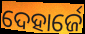
ଦେହାର୍ଜେ